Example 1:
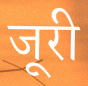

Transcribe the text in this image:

जूरी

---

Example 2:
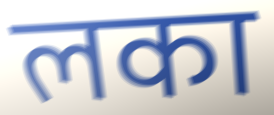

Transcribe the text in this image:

लका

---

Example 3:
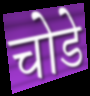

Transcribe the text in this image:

चोडे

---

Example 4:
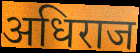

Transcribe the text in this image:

अधिराज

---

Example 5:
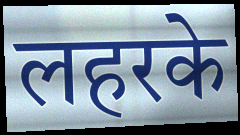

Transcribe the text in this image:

लहरके